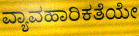
ವ್ಯಾವಹಾರಿಕತೆಯೇ